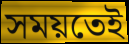
সময়তেই